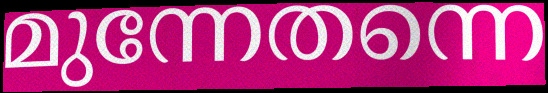
മുന്നേതന്നെ